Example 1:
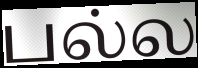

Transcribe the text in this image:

பல்ல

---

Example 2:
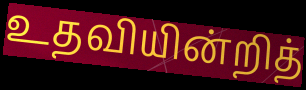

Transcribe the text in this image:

உதவியின்றித்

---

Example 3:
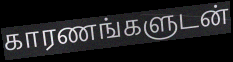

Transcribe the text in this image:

காரணங்களுடன்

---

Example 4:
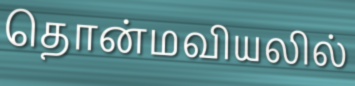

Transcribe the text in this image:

தொன்மவியலில்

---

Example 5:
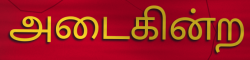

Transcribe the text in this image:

அடைகின்ற